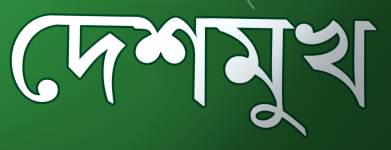
দেশমুখ